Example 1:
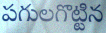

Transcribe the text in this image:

పగులగొట్టిన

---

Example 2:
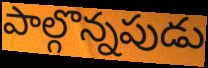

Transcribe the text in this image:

పాల్గొన్నపుడు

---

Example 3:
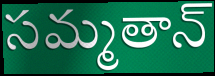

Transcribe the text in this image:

సమ్మతాన్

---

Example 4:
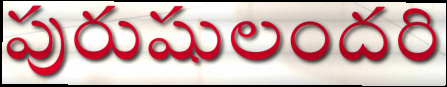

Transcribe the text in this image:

పురుషులందరి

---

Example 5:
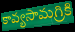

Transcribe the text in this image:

కావ్యసామగ్రికి